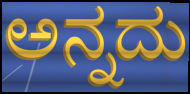
ಅನ್ನದು